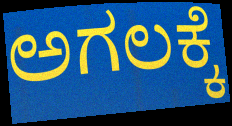
ಅಗಲಕ್ಕೆ